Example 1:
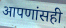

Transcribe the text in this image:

आपणांसही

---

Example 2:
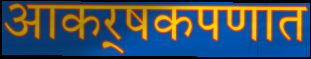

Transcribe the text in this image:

आकर्षकपणात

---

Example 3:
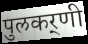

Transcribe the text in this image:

पुलकर्णी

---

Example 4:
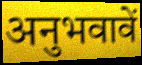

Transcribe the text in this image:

अनुभवावें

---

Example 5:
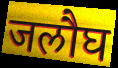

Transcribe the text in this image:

जलौघ